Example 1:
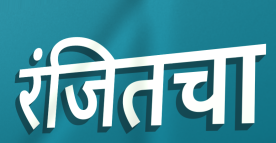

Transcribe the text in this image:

रंजितचा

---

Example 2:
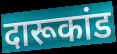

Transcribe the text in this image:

दारूकांड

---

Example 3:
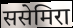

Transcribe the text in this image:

ससेमिरा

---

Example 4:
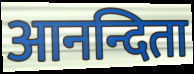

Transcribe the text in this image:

आनन्दिता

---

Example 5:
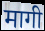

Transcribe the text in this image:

मागी